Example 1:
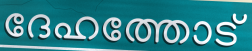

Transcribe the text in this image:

ദേഹത്തോട്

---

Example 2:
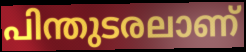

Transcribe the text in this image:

പിന്തുടരലാണ്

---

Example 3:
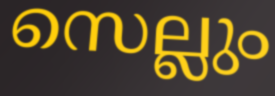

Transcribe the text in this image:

സെല്ലും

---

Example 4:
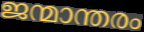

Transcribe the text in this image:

ജന്മാന്തരം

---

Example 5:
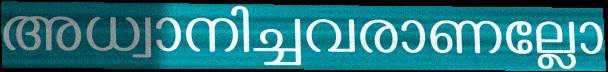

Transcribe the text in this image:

അധ്വാനിച്ചവരാണല്ലോ